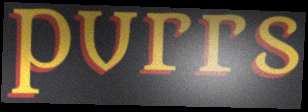
purrs